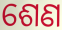
ଶେଣ